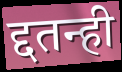
द्दतन्ही